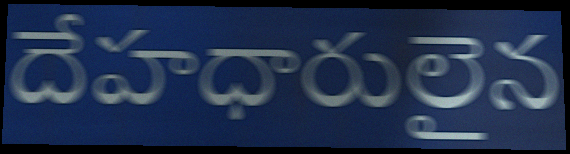
దేహధారులైన